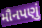
મૌનપણું